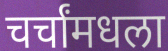
चर्चांमधला